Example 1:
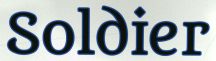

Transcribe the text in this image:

Soldier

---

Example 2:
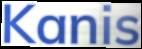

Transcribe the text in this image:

Kanis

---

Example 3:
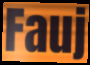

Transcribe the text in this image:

Fauj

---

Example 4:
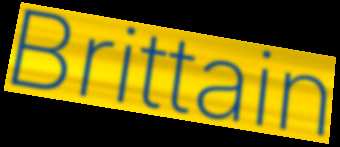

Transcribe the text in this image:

Brittain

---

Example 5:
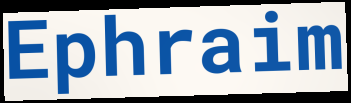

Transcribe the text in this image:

Ephraim